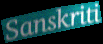
Sanskriti